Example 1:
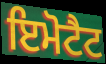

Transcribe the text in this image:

ਇਮੋਟੈਟ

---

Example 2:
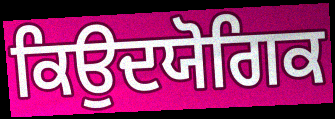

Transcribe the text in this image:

ਕਿਉਦਯੋਗਿਕ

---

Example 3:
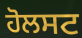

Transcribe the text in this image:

ਹੋਲਸਟ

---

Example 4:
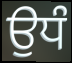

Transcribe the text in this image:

ਉਧੰ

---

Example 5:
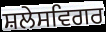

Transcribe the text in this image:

ਸ਼ਲੇਸਵਿਗਰ